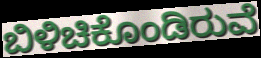
ಬಿಳಿಚಿಕೊಂಡಿರುವೆ